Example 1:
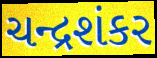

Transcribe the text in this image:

ચન્દ્રશંકર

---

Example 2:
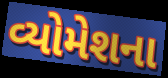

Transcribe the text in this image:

વ્યોમેશના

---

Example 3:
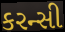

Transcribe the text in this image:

કરન્સી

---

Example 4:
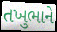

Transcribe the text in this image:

તખુભાને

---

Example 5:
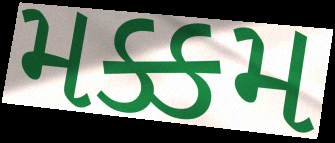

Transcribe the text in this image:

મક્કમ